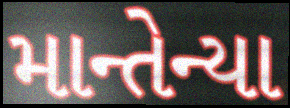
માન્તેન્યા